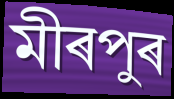
মীৰপুৰ